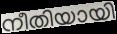
നീതിയായി